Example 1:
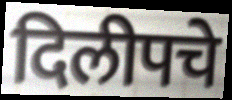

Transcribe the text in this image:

दिलीपचे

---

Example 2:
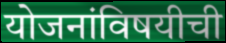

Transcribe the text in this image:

योजनांविषयीची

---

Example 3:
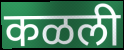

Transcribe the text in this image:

कळली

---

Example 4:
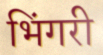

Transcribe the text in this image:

भिंगरी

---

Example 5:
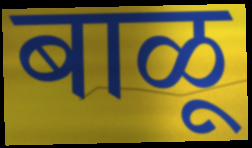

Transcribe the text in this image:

बाळू